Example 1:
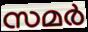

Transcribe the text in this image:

സമർ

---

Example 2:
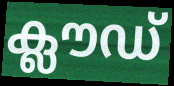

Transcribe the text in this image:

ക്ലൗഡ്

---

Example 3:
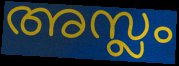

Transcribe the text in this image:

അസ്ലം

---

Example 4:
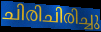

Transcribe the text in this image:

ചിരിചിരിച്ചു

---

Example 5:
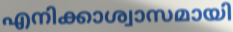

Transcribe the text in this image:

എനിക്കാശ്വാസമായി